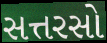
સત્તરસો